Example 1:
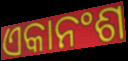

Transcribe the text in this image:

ଏକାନଂଶ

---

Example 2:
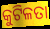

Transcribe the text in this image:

କୁଟିଳତା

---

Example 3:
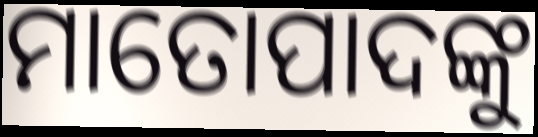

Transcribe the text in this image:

ମାତୋପାଦଙ୍କୁ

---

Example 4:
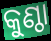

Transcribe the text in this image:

କୁଣ୍ଠା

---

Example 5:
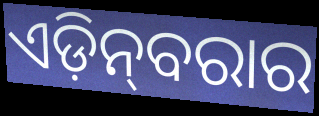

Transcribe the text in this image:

ଏଡ଼ିନ୍‍ବରାର